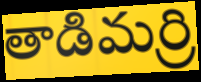
తాడిమర్రి